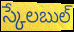
స్కేలబుల్